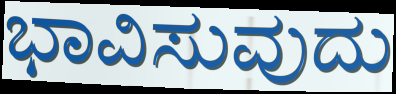
ಭಾವಿಸುವುದು